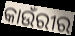
କାଉଁରୀର